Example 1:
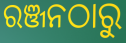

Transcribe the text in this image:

ରଞ୍ଜନଠାରୁ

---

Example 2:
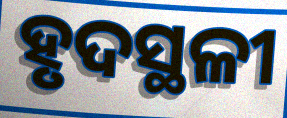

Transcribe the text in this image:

ହୃଦସ୍ଥଳୀ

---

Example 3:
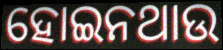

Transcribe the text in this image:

ହୋଇନଥାଉ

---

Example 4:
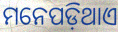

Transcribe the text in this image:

ମନେପଡ଼ିଥାଏ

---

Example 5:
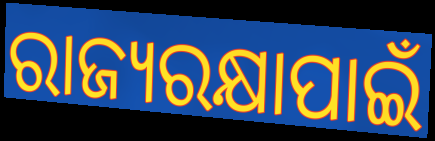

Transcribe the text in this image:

ରାଜ୍ୟରକ୍ଷାପାଇଁ